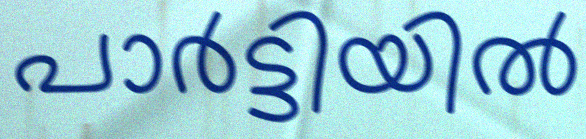
പാർട്ടിയിൽ